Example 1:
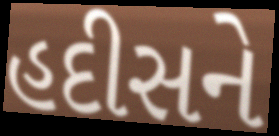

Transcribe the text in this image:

હદીસને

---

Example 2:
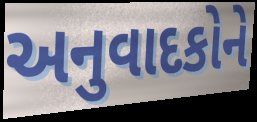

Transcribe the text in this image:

અનુવાદકોને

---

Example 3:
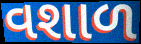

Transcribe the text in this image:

વશાળ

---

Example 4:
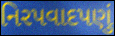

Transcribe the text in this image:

નિરપવાદપણું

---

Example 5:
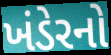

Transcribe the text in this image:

ખંડેરનો